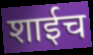
शाईच